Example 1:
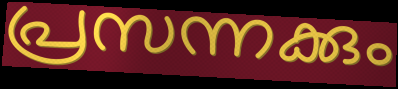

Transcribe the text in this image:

പ്രസന്നക്കും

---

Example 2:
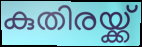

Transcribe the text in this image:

കുതിരയ്ക്ക്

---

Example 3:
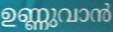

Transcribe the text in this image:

ഉണ്ണുവാൻ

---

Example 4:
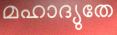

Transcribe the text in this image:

മഹാദ്യുതേ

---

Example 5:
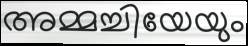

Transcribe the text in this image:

അമ്മച്ചിയേയും